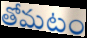
తోమటం